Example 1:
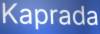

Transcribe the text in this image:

Kaprada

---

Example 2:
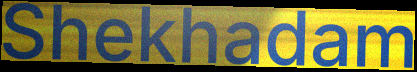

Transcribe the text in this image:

Shekhadam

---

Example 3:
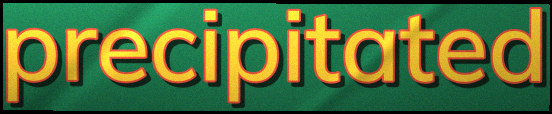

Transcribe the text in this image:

precipitated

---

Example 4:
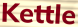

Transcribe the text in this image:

Kettle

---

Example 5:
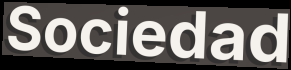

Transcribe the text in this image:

Sociedad